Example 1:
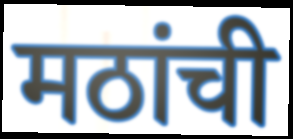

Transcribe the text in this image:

मठांची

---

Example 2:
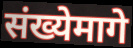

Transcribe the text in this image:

संख्येमागे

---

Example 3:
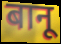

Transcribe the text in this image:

बानू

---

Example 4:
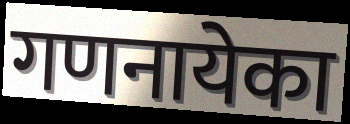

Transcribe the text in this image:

गणनायेका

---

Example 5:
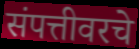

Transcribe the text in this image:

संपत्तीवरचे